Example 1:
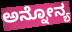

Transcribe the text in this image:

ಅನ್ನೋನ್ಯ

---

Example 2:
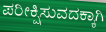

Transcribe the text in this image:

ಪರೀಕ್ಷಿಸುವದಕ್ಕಾಗಿ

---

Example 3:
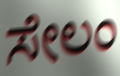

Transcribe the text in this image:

ಸೇಲಂ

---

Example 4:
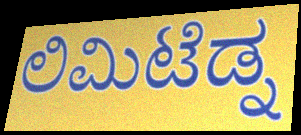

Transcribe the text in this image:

ಲಿಮಿಟೆಡ್ನ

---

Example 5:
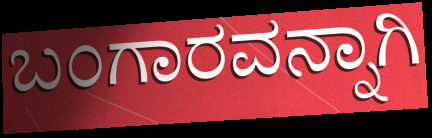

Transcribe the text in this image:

ಬಂಗಾರವನ್ನಾಗಿ